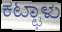
ಕಟ್ಟಾಳು